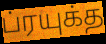
ப்ரயுக்த